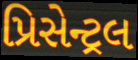
પ્રિસેન્ટ્રલ